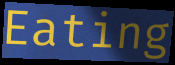
Eating